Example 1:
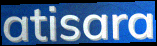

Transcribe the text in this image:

atisara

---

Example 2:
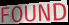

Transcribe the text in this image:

FOUND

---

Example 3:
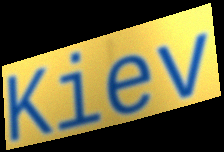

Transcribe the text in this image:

Kiev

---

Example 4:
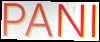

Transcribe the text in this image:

PANI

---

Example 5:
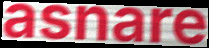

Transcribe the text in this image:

asnare